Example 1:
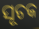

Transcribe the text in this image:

ସୂଚକ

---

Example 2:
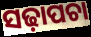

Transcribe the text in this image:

ସଢ଼ାପଚା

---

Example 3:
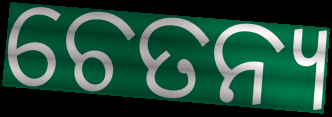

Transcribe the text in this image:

ଚେତନ୍ୟ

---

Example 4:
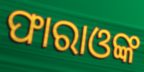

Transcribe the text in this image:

ଫାରାଓଙ୍କ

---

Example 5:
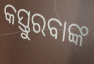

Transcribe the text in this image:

କସ୍ତୁରବାଙ୍କ